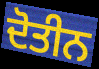
ਦੋਤੀਨ